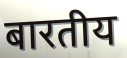
बारतीय